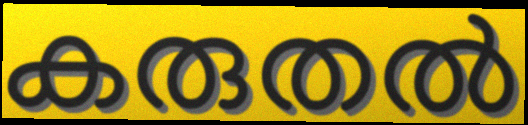
കരുതൽ